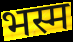
भस्म